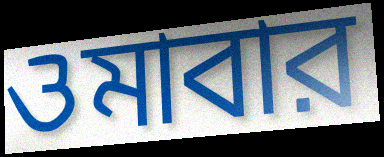
ওমাবার